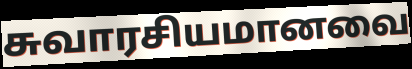
சுவாரசியமானவை